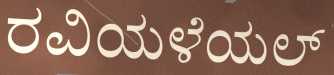
ರವಿಯಳೆಯಲ್